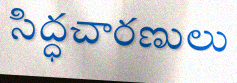
సిద్ధచారణులు